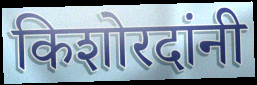
किशोरदांनी